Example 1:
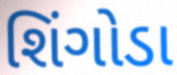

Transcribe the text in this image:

શિંગોડા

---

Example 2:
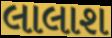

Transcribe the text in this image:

લાલાશ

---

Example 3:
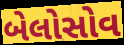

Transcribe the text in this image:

બેલોસોવ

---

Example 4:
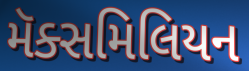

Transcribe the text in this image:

મૅક્સમિલિયન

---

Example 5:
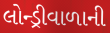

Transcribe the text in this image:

લોન્ડ્રીવાળાની